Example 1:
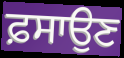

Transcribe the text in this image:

ਫ਼ਸਾਉਣ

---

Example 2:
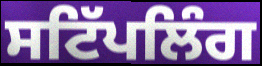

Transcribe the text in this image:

ਸਟਿੱਪਲਿੰਗ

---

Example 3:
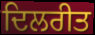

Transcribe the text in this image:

ਦਿਲਰੀਤ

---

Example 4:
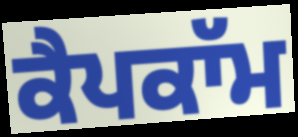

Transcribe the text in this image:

ਕੈਪਕਾੱਮ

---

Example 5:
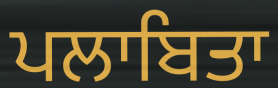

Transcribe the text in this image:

ਪਲਾਬਿਤਾ